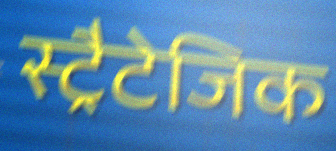
स्ट्रैटेजिक